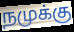
நமுக்கு